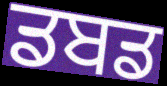
ਡਬਡ